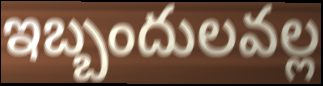
ఇబ్బందులవల్ల